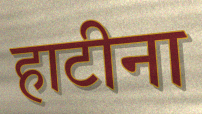
हाटीना